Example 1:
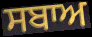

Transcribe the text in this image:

ਸਬਾਅ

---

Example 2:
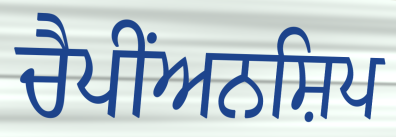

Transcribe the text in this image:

ਚੈਪੀਂਅਨਸ਼ਿਪ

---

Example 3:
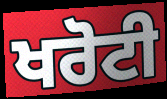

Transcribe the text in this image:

ਖਰੋਟੀ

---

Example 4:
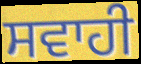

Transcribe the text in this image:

ਸਵਾਹੀ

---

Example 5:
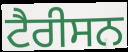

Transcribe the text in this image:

ਟੈਰੀਸਨ